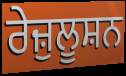
ਰੇਜ਼ੁਲੂਸ਼ਨ